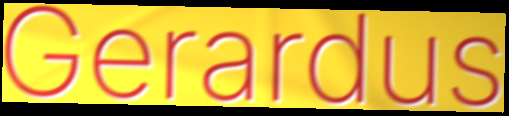
Gerardus